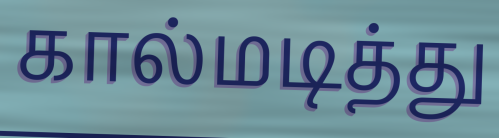
கால்மடித்து